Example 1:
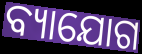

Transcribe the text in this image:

ବ୍ୟାଯୋଗ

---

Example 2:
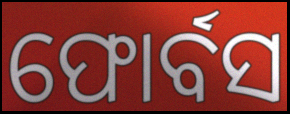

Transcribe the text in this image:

ଫୋର୍ବସ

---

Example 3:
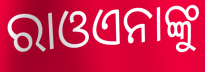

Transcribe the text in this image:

ରାଓଏନାଙ୍କୁ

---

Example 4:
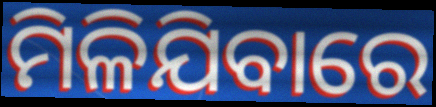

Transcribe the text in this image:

ମିଳିଯିବାରେ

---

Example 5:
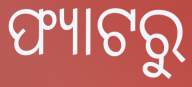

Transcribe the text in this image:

ଫ୍ୟାଟରୁ